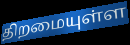
திறமையுள்ள